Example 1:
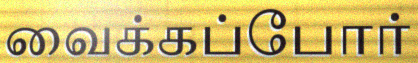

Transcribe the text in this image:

வைக்கப்போர்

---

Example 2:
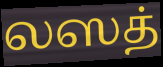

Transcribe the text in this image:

லஸத்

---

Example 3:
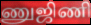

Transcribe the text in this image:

ணுஜிணி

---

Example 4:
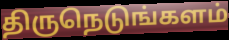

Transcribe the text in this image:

திருநெடுங்களம்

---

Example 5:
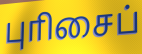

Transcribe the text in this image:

புரிசைப்